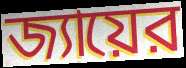
জ্যায়ের